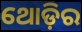
ଥୋଡ଼ିର